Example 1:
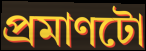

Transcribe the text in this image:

প্ৰমাণটো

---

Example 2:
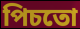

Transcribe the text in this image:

পিচতো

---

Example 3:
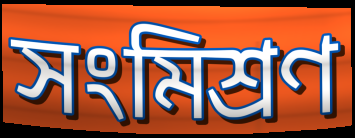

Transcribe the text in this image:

সংমিশ্ৰণ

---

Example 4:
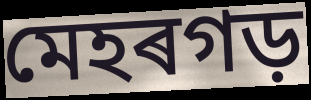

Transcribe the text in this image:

মেহৰগড়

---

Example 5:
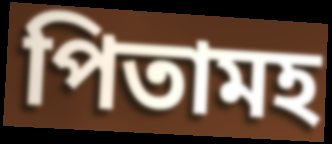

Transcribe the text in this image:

পিতামহ